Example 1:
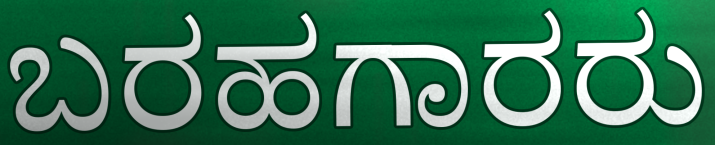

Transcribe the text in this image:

ಬರಹಗಾರರು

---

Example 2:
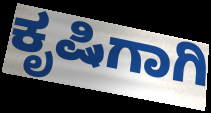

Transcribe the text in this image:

ಕೃಷಿಗಾಗಿ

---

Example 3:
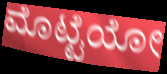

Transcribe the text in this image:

ಮೊಟ್ಟೆಯೋ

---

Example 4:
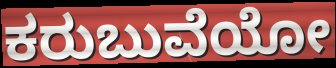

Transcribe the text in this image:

ಕರುಬುವೆಯೋ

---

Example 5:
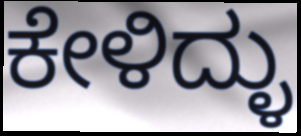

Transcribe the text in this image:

ಕೇಳಿದ್ಳು